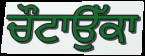
ਚੌਟਾਉੱਕਾ